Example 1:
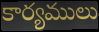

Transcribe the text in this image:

కార్యములు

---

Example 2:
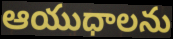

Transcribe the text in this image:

ఆయుధాలను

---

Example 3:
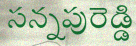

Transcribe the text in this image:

సన్నపురెడ్డి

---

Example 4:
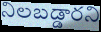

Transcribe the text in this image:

నిలబడ్డారని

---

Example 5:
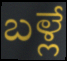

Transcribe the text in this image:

బళ్లే